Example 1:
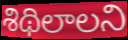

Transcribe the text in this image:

శిథిలాలని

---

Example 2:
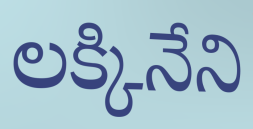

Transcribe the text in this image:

లక్కినేని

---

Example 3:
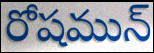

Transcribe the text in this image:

రోషమున్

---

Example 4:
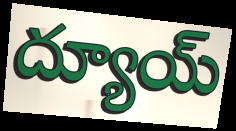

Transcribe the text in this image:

ద్యూయ్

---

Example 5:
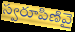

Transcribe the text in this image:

స్వరూపిణివై